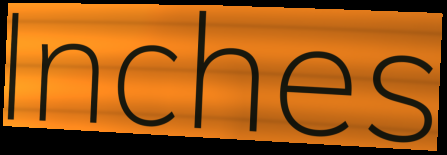
Inches